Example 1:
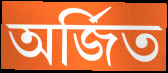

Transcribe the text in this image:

অর্জিত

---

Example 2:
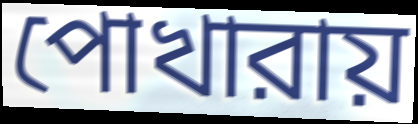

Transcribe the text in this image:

পোখারায়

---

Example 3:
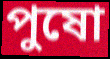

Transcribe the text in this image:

পুষো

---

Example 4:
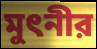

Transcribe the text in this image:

মুৎনীর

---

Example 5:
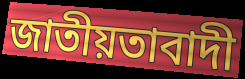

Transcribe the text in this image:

জাতীয়তাবাদী